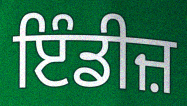
ਇੰਡੀਜ਼